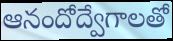
ఆనందోద్వేగాలతో